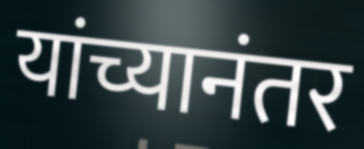
यांच्यानंतर